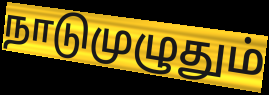
நாடுமுழுதும்